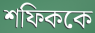
শফিককে